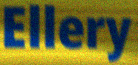
Ellery